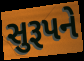
સુરૂપને